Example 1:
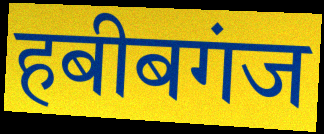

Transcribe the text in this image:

हबीबगंज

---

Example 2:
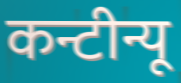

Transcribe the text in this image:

कन्टीन्यू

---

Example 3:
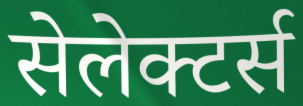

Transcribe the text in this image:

सेलेक्टर्स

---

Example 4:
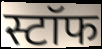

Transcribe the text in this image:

स्‍टॉफ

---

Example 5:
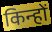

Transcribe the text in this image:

किन्हों